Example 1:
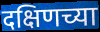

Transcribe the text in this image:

दक्षिणच्या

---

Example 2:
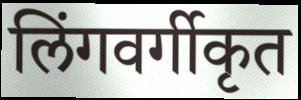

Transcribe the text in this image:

लिंगवर्गीकृत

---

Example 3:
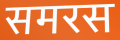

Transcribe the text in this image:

समरस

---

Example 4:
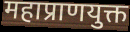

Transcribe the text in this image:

महाप्राणयुक्त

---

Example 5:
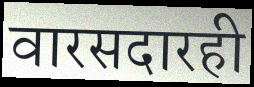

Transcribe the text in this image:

वारसदारही